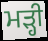
ਮੜ੍ਹੀ